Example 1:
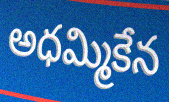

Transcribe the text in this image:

అధమ్మికేన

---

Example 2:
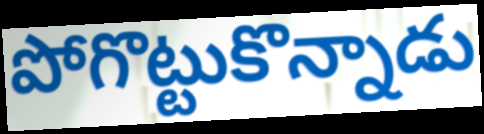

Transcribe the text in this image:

పోగొట్టుకొన్నాడు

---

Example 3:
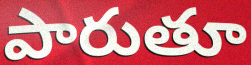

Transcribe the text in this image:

పారుతూ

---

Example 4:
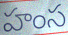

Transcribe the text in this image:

హంస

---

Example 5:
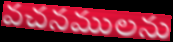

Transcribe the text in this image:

వచనములను